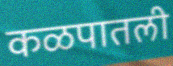
कळपातली